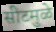
सीटमुळे